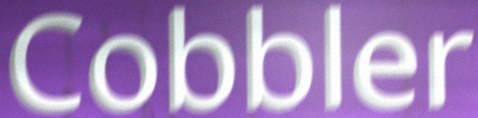
Cobbler